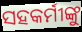
ସହକର୍ମୀଙ୍କୁ